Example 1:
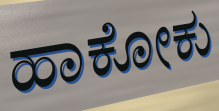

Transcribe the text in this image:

ಹಾಕೋಕು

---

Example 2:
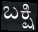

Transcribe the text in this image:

ಬಕ್ಷಿ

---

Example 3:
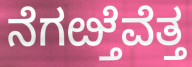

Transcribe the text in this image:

ನೆಗೞ್ತೆವೆತ್ತ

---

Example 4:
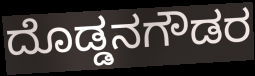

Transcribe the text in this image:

ದೊಡ್ಡನಗೌಡರ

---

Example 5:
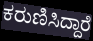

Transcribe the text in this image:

ಕರುಣಿಸಿದ್ದಾರೆ